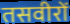
तसवीरों